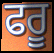
ਫਰੂ